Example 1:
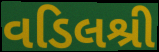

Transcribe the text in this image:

વડિલશ્રી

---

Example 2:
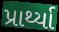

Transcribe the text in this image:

પ્રાર્થ્યા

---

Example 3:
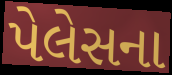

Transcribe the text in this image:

પેલેસના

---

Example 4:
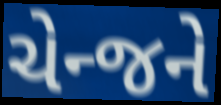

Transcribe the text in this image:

ચેન્જને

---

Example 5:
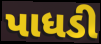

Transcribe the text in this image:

પાધડી